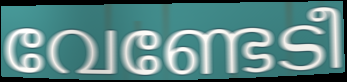
വേണ്ടേടീ